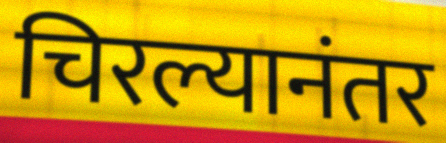
चिरल्यानंतर